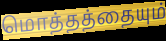
மொத்தத்தையும்